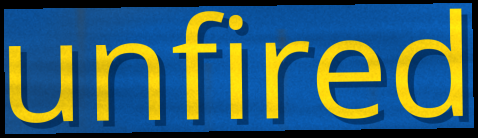
unfired